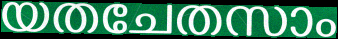
യതചേതസാം